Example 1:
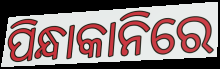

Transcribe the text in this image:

ପିନ୍ଧାକାନିରେ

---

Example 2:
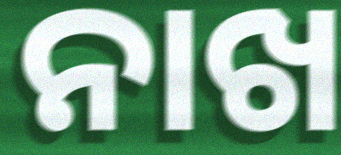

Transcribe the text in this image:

ନାଖ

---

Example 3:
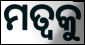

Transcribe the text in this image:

ମତ୍ୱକୁ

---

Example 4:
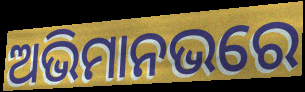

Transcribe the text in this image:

ଅଭିମାନଭରେ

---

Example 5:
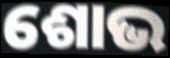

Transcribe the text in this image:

ଶୋଭ